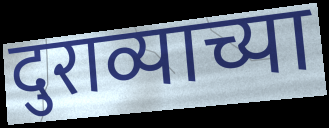
दुराव्याच्या